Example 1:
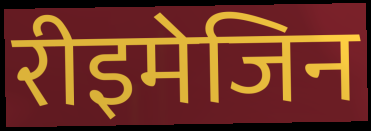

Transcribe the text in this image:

रीइमेजिन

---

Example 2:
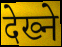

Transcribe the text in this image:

देख्ने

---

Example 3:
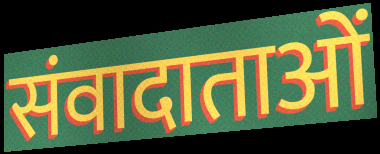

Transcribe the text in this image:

संवादाताओं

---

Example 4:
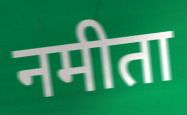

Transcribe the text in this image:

नमीता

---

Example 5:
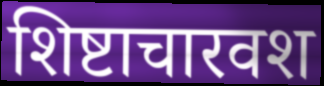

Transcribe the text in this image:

शिष्टाचारवश